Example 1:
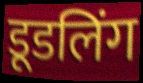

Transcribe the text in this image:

डूडलिंग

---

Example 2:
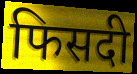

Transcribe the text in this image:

फिसदी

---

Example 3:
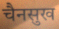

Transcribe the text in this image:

चैनसुख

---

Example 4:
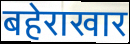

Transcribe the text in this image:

बहेराखार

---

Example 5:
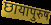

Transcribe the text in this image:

छायापुरुष